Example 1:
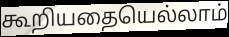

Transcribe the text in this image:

கூறியதையெல்லாம்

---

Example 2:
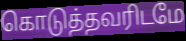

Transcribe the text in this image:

கொடுத்தவரிடமே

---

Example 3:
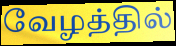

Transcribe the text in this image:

வேழத்தில்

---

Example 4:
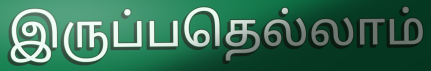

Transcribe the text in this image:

இருப்பதெல்லாம்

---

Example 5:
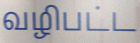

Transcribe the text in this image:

வழிபட்ட